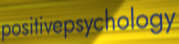
positivepsychology